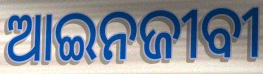
ଆଇନଜୀବୀ